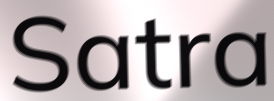
Satra